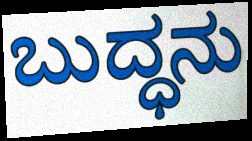
ಬುದ್ಧನು